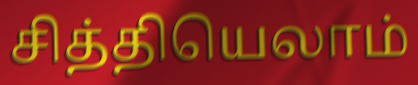
சித்தியெலாம்